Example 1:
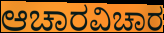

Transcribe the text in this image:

ಆಚಾರವಿಚಾರ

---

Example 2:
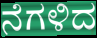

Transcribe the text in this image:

ನೆಗಳಿದ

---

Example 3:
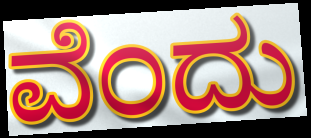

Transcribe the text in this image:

ವೆಂದು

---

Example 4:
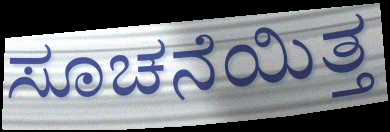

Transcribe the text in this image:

ಸೂಚನೆಯಿತ್ತ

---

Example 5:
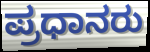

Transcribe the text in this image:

ಪ್ರಧಾನರು